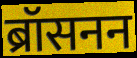
ब्रॉसनन